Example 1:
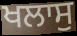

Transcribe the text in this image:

ਖਲਾਸੁ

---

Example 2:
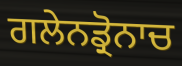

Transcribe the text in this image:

ਗਲੇਨਡ੍ਰੋਨਾਚ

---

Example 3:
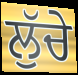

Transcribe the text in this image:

ਲੁੱਚੇ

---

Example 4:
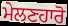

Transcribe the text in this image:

ਮੇਲਣਹਾਰੋ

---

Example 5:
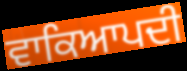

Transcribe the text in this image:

ਵਾਕਿਆਪਦੀ